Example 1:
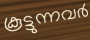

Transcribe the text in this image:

കൂട്ടുന്നവർ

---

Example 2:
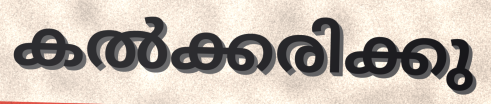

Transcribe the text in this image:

കൽക്കരിക്കു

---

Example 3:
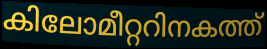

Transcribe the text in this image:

കിലോമീറ്ററിനകത്ത്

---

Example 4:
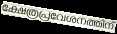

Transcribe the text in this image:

ക്ഷേത്രപ്രവേശനത്തിന്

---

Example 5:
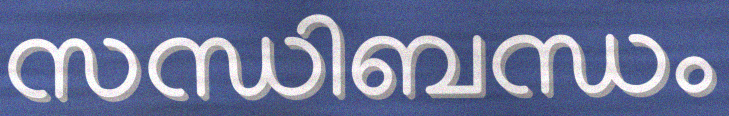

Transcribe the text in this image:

സന്ധിബന്ധം